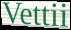
Vettii